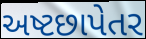
અષ્ટછાપેતર